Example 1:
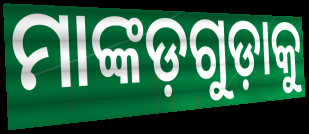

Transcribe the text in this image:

ମାଙ୍କଡ଼ଗୁଡ଼ାକୁ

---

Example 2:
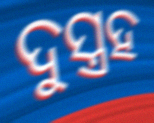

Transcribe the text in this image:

ଦୁସ୍ତ୍ରହ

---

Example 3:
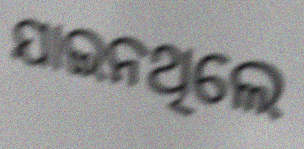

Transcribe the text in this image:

ଯାଇନଥିଲେ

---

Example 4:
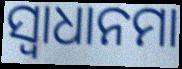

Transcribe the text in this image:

ସ୍ଵାଧାନମା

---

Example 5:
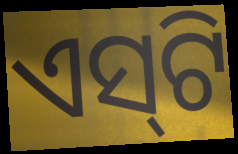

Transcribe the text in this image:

ଏସ୍‌ଟି